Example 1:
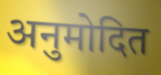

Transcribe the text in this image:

अनुमोदित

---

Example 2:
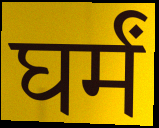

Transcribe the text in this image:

घर्मं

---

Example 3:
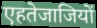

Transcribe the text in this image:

एहतेजाजियों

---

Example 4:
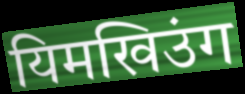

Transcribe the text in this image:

यिमखिउंग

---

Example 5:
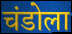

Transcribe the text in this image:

चंडोला